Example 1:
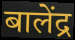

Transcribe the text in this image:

बालेंद्र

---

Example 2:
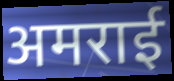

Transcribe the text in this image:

अमराई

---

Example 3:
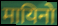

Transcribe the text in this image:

मायिनो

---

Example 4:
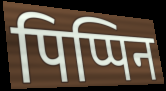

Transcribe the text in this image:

पिप्पिन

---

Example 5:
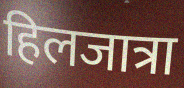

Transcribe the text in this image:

हिलजात्रा